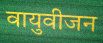
वायुवीजन